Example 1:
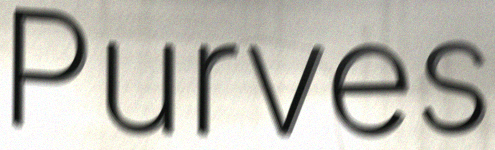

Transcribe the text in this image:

Purves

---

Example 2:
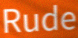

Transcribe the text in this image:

Rude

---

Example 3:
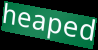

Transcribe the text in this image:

heaped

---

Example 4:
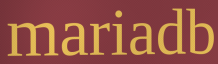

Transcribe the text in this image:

mariadb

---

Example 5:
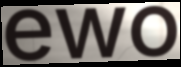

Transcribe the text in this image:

ewo